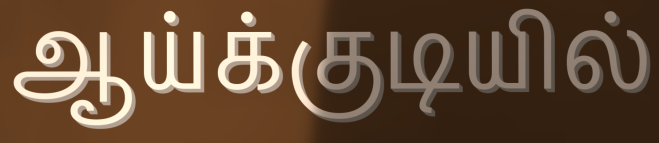
ஆய்க்குடியில்